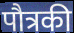
पौत्रकी